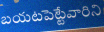
బయటపెట్టేవారిని